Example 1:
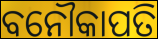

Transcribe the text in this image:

ବନୌକାପତି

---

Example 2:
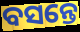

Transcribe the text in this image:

ବସନ୍ତେ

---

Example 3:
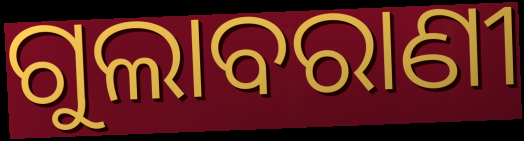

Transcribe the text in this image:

ଗୁଲାବରାଣୀ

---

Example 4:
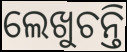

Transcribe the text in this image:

ଲେଖୁଚନ୍ତି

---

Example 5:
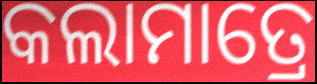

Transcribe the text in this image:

କଲାମାତ୍ରେ